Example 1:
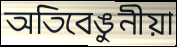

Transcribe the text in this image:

অতিবেঙুনীয়া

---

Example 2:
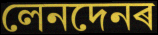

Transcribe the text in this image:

লেনদেনৰ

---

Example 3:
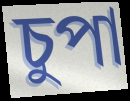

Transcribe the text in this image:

চুপা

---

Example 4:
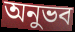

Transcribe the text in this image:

অনুভব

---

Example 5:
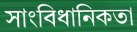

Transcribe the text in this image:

সাংবিধানিকতা